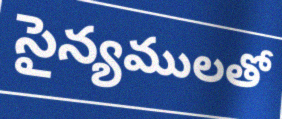
సైన్యములతో